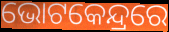
ଭୋଟକେନ୍ଦ୍ରରେ